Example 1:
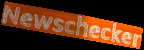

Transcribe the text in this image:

Newschecker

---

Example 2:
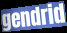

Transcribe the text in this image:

gendrid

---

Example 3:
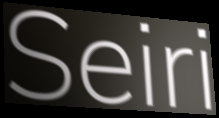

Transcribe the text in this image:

Seiri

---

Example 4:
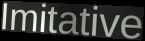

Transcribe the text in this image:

Imitative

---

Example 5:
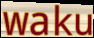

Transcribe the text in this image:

waku